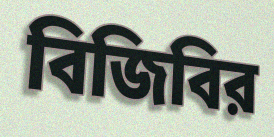
বিজিবির